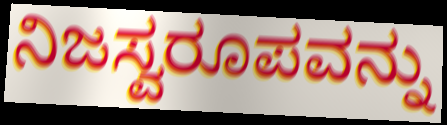
ನಿಜಸ್ವರೂಪವನ್ನು